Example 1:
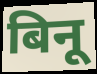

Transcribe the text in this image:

बिनू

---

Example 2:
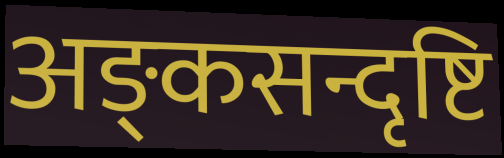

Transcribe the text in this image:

अङ्कसन्दृष्टि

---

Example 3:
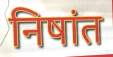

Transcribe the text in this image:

निषांत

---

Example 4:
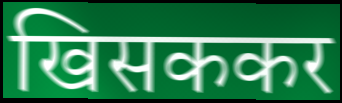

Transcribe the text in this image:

खिसककर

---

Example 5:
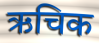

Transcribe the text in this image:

ऋचिक